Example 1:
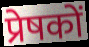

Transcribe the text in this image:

प्रेषकों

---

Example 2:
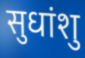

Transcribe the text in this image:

सुधांशु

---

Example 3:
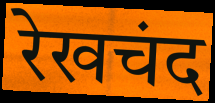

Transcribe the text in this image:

रेखचंद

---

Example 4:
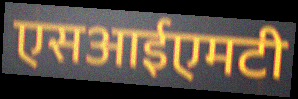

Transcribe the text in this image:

एसआईएमटी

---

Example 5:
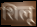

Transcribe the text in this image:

शिलू